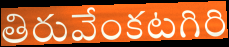
తిరువేంకటగిరి